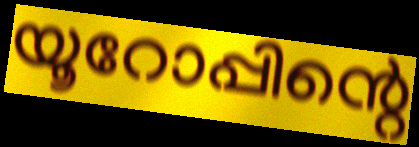
യൂറോപ്പിന്റെ